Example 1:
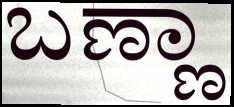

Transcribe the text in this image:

ಬಣ್ಣಾ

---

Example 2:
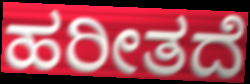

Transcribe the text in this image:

ಹರೀತದೆ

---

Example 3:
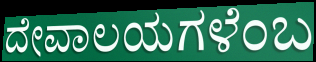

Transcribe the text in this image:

ದೇವಾಲಯಗಳೆಂಬ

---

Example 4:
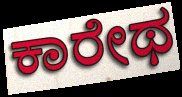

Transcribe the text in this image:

ಕಾರೇಥ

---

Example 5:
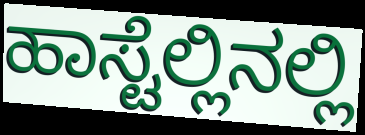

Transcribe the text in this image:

ಹಾಸ್ಟೆಲ್ಲಿನಲ್ಲಿ